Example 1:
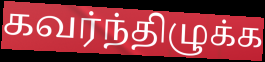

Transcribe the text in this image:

கவர்ந்திழுக்க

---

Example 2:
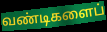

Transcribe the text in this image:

வண்டிகளைப்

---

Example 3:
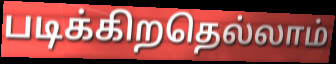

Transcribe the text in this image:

படிக்கிறதெல்லாம்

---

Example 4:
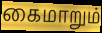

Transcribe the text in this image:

கைமாறும்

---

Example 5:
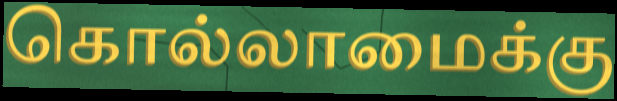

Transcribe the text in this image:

கொல்லாமைக்கு